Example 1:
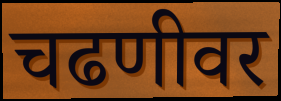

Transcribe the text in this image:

चढणीवर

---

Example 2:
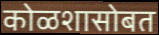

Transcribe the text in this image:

कोळशासोबत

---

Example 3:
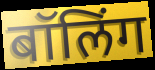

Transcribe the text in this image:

बॉलिंग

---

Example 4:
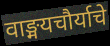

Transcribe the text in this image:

वाङ्मयचौर्याचे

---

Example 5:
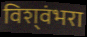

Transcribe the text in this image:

विश्वंभरा